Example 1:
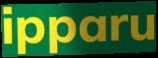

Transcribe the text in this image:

ipparu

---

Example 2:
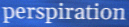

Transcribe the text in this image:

perspiration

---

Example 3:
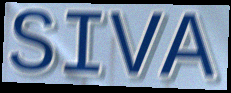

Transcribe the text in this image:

SIVA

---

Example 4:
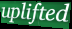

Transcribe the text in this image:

uplifted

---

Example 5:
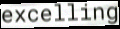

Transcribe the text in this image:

excelling